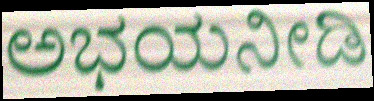
ಅಭಯನೀಡಿ